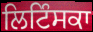
ਲਿਟਿੰਸਕਾ